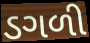
ડગળી